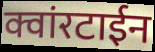
क्वांरटाईन